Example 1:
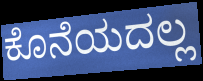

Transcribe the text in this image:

ಕೊನೆಯದಲ್ಲ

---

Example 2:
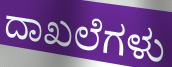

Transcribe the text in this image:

ದಾಖಲೆಗಳು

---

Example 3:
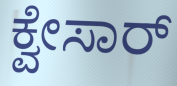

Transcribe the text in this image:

ಕ್ವೇಸಾರ್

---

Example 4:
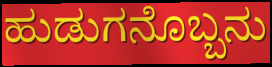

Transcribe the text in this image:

ಹುಡುಗನೊಬ್ಬನು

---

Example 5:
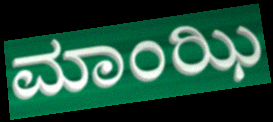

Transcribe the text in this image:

ಮಾಂಝಿ